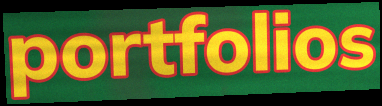
portfolios